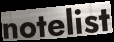
notelist